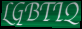
LGBTIQ